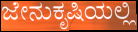
ಜೇನುಕೃಷಿಯಲ್ಲಿ